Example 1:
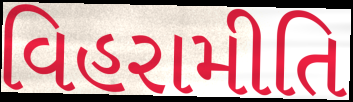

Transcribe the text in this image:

વિહરામીતિ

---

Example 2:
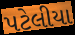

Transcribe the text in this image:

પટેલીયા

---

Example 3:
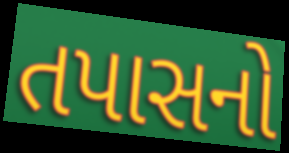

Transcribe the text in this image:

તપાસનો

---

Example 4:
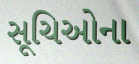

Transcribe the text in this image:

સૂચિઓના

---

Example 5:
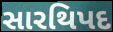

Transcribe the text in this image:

સારથિપદ